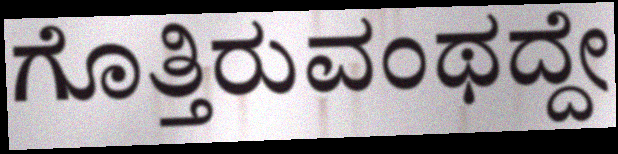
ಗೊತ್ತಿರುವಂಥದ್ದೇ